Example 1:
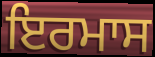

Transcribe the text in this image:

ਇਰਮਾਸ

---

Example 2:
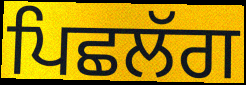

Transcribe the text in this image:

ਪਿਛਲੱਗ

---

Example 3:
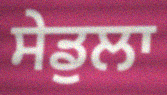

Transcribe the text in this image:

ਸੇਡੁਲਾ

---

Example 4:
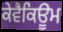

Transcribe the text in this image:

ਕੇਵੈਕਿਊਮ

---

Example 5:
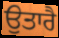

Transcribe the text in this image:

ਉਤਾਰੈ